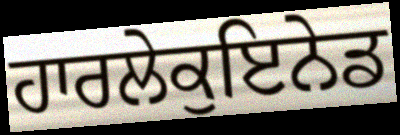
ਹਾਰਲੇਕੁਇਨੇਡ